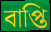
বাপ্তি